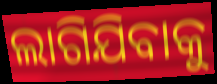
ଲାଗିଯିବାକୁ